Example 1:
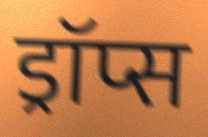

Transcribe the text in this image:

ड्रॉप्‍स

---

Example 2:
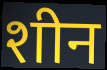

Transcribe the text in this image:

शीन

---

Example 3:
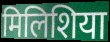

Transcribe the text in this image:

मिलिशिया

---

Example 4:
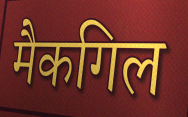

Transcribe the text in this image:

मैकगिल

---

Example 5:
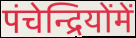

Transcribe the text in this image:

पंचेन्द्रियोंमें